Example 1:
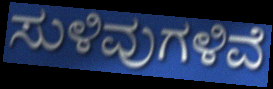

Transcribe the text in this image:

ಸುಳಿವುಗಳಿವೆ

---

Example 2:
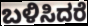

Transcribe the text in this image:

ಬಳಿಸಿದರೆ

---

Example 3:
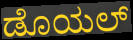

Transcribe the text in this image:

ಡೊಯಲ್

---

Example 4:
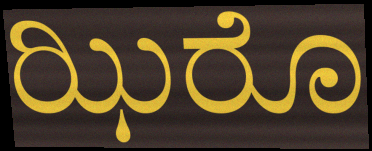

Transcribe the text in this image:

ಝಿರೊ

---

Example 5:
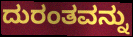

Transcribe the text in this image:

ದುರಂತವನ್ನು